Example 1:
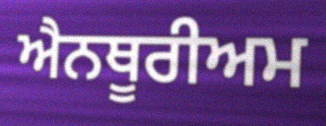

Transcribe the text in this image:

ਐਨਥੂਰੀਅਮ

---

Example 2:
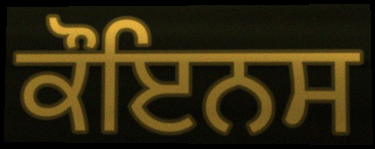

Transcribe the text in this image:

ਕੌਇਨਸ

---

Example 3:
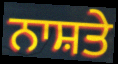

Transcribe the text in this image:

ਨਾਸ਼ਤੇ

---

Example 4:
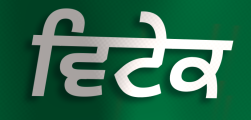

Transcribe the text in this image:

ਵਿਟੇਕ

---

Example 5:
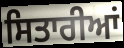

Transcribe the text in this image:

ਸਿਤਾਰੀਆਂ